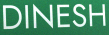
DINESH